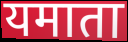
यमाता